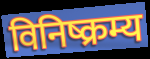
विनिष्क्रम्य